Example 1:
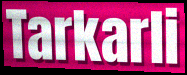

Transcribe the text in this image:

Tarkarli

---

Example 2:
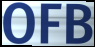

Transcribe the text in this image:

OFB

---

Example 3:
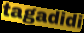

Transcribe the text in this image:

tagadidi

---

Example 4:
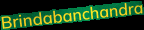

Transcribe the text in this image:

Brindabanchandra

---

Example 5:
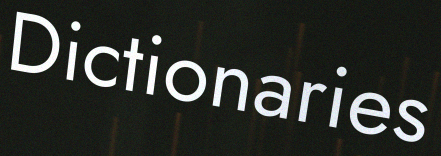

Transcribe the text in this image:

Dictionaries